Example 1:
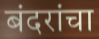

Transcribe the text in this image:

बंदरांचा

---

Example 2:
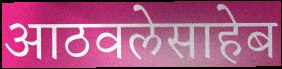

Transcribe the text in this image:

आठवलेसाहेब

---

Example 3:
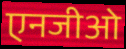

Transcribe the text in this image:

एनजीओ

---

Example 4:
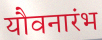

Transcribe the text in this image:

यौवनारंभ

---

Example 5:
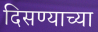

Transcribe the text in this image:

दिसण्याच्या